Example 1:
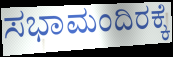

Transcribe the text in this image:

ಸಭಾಮಂದಿರಕ್ಕೆ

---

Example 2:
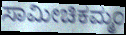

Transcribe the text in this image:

ಸಾಮೀಚಿಕಮ್ಮಂ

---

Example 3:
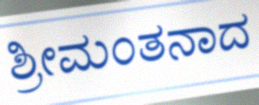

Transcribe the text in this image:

ಶ್ರೀಮಂತನಾದ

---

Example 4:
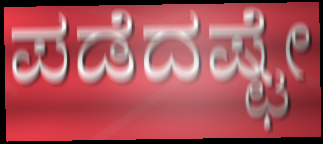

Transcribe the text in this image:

ಪಡೆದಷ್ಟೇ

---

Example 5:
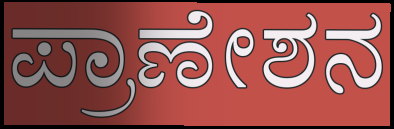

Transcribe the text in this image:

ಪ್ರಾಣೇಶನ